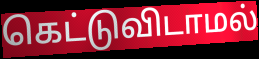
கெட்டுவிடாமல்